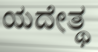
ಯದೇತ್ಥ